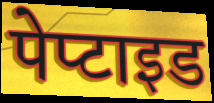
पेप्टाइड